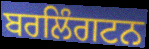
ਬਰਲਿੰਗਟਨ